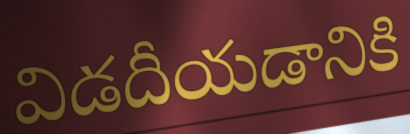
విడదీయడానికి